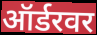
ऑर्डरवर